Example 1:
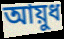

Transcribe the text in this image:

আয়ুধ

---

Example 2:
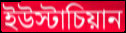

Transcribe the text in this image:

ইউস্টাচিয়ান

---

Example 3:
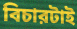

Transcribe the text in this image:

বিচারটাই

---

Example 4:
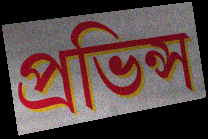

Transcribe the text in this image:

প্রভিন্স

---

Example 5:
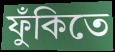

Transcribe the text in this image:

ফুঁকিতে